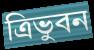
ত্রিভুবন